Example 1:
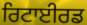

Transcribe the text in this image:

ਰਿਟਾਈਰਡ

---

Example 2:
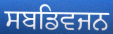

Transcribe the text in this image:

ਸਬਡਿਵਜਨ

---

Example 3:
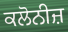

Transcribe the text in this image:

ਕਲੋਨੀਜ਼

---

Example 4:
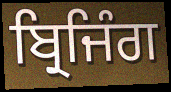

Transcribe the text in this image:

ਬ੍ਰਿਜਿੰਗ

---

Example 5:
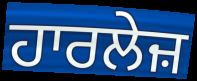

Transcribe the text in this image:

ਹਾਰਲੇਜ਼